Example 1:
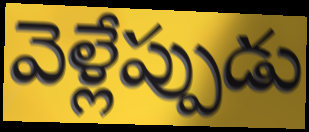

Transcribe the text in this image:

వెళ్లేప్పుడు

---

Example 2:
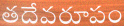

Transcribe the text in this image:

తదేవరూపం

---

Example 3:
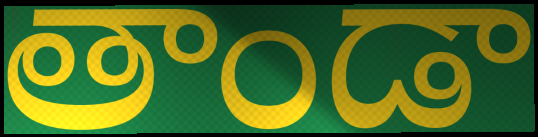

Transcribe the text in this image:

తాండా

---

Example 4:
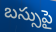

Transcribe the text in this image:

బస్సుపై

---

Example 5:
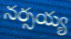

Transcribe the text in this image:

నర్సయ్య